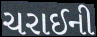
ચરાઈની